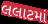
લલાટમાં